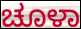
ಚೂಳಾ